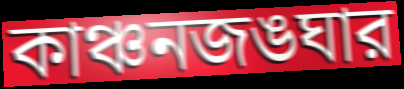
কাঞ্চনজঙঘার